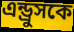
এন্ড্রুসকে